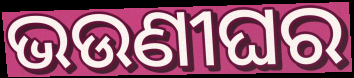
ଭଉଣୀଘର